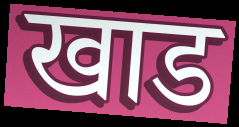
खाड